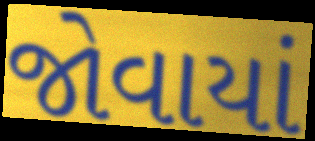
જોવાયાં